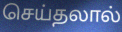
செய்தலால்